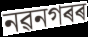
নৱনগৰৰ